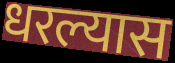
धरल्यास